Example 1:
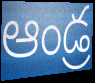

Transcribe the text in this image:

ఆండ్ర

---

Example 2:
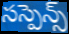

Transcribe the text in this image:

సస్పెన్స్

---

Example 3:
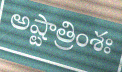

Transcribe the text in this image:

అష్టాత్రింశః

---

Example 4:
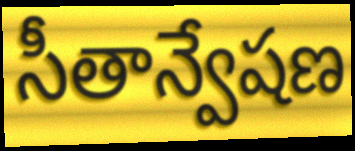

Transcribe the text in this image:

సీతాన్వేషణ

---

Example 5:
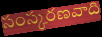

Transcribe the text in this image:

సంస్కరణవాది